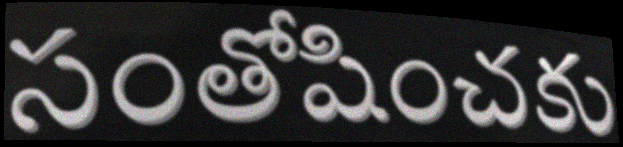
సంతోషించకు